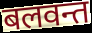
बलवन्‍त